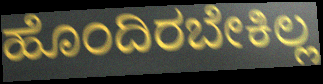
ಹೊಂದಿರಬೇಕಿಲ್ಲ